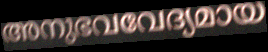
അനുഭവവേദ്യമായ